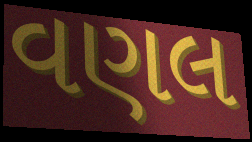
વણલ